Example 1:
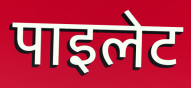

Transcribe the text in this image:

पाइलेट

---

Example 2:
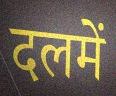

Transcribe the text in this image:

दलमें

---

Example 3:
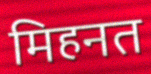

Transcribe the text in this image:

मिहनत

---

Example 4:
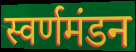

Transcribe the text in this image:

स्वर्णमंडन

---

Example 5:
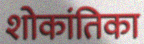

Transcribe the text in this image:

शोकांतिका